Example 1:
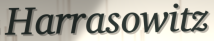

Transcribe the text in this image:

Harrasowitz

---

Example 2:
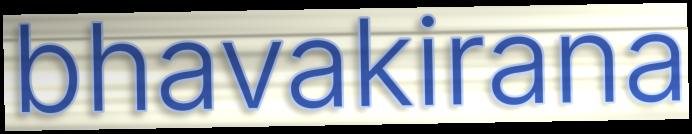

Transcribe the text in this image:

bhavakirana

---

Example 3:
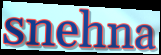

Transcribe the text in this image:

snehna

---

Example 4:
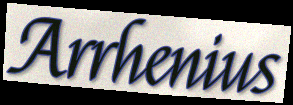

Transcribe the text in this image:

Arrhenius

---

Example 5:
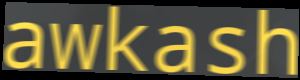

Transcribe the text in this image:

awkash